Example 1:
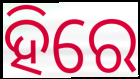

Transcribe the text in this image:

ହିରେ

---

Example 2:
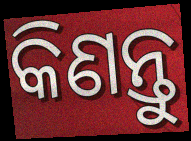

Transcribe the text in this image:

କିଣନ୍ତୁ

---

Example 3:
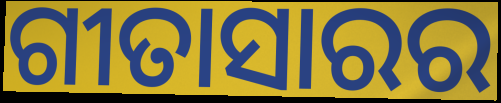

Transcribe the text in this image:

ଗୀତାସାରର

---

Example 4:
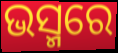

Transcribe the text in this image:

ଭସ୍ମରେ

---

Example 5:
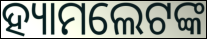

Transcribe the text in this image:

ହ୍ୟାମଲେଟଙ୍କ